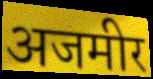
अजमीर